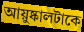
আয়ুষ্কালটাকে